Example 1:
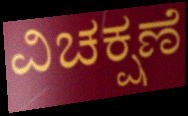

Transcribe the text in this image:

ವಿಚಕ್ಷಣೆ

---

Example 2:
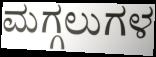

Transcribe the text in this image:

ಮಗ್ಗಲುಗಳ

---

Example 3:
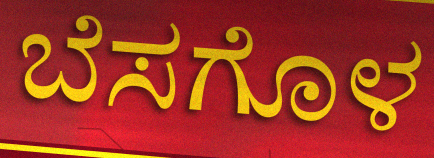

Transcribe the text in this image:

ಬೆಸಗೊಳ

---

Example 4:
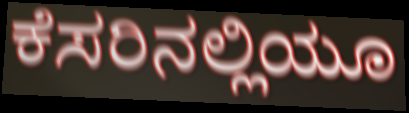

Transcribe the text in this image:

ಕೆಸರಿನಲ್ಲಿಯೂ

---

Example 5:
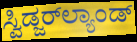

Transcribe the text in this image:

ಸ್ವಿಡ್ಜರ್‌ಲ್ಯಾಂಡ್